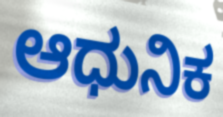
ಆಧುನಿಕ